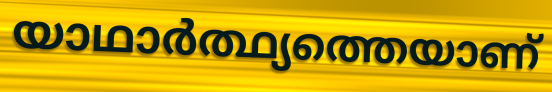
യാഥാർത്ഥ്യത്തെയാണ്